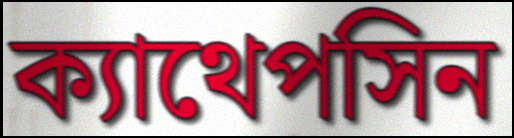
ক্যাথেপসিন